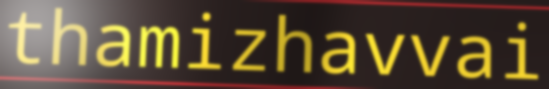
thamizhavvai